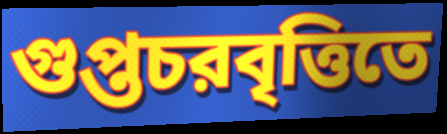
গুপ্তচরবৃত্তিতে